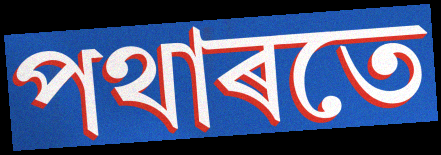
পথাৰতে